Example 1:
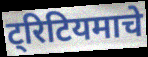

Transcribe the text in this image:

ट्रिटियमाचे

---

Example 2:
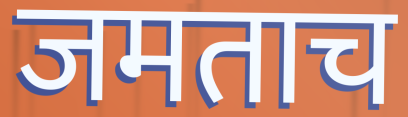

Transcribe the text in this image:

जमताच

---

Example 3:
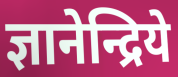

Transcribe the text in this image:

ज्ञानेन्द्रिये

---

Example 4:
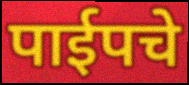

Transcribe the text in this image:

पाईपचे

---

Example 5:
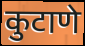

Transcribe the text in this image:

कुटाणे